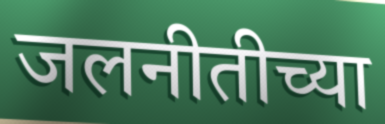
जलनीतीच्या